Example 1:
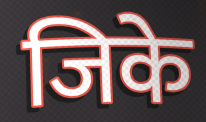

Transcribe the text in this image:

जिके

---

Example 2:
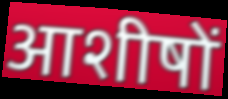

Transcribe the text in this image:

आशीषों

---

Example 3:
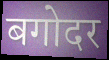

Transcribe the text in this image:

बगोदर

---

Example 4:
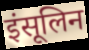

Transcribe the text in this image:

इंसूलिन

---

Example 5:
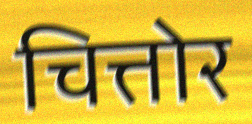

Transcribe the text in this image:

चित्तोर